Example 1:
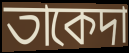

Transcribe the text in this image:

তাকেদা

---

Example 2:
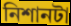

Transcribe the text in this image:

নিশানটা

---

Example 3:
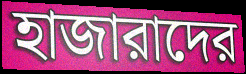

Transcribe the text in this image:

হাজারাদের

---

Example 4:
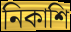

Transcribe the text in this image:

নিকাশি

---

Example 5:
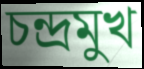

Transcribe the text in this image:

চন্দ্রমুখ